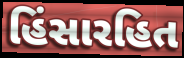
હિંસારહિત